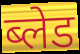
ब्लेड